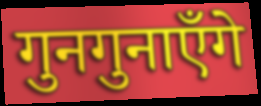
गुनगुनाएँगे